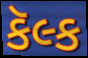
કૅલ્ક